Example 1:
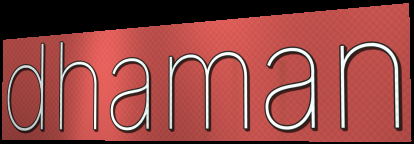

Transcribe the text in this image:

dhaman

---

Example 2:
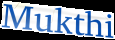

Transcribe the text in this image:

Mukthi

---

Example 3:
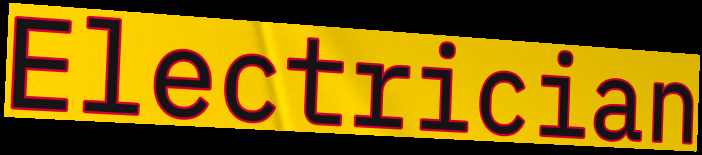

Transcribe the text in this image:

Electrician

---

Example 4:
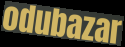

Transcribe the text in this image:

odubazar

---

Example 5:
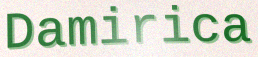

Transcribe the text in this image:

Damirica